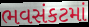
ભવસંકટમાં